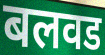
बलवड